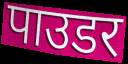
पाउडर